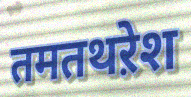
तमतथऱेश